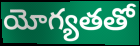
యోగ్యతతో